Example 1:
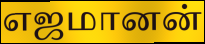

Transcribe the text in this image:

எஜமானன்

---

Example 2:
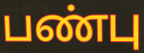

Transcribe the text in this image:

பண்பு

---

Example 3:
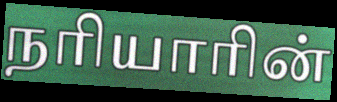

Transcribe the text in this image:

நரியாரின்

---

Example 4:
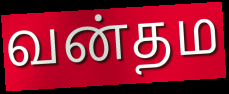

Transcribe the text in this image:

வன்தம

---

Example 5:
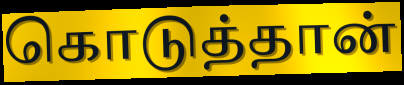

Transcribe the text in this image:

கொடுத்தான்